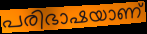
പരിഭാഷയാണ്